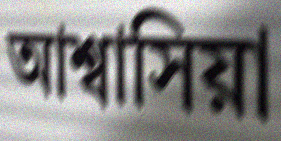
আশ্বাসিয়া